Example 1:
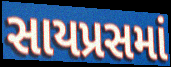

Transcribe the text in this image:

સાયપ્રસમાં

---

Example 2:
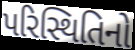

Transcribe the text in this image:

પરિસ્થિતિનો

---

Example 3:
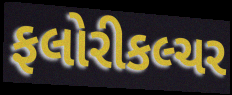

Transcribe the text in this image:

ફલોરીકલ્ચર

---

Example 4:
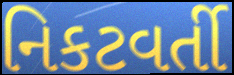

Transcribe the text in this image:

નિકટવર્તી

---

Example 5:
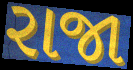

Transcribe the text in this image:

રાજા